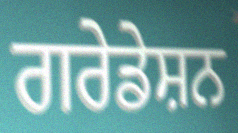
ਗਰੇਡੇਸ਼ਨ